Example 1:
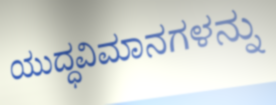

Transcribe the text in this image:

ಯುದ್ಧವಿಮಾನಗಳನ್ನು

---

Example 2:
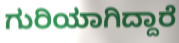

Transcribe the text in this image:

ಗುರಿಯಾಗಿದ್ದಾರೆ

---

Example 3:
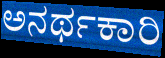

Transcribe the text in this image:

ಅನರ್ಥಕಾರಿ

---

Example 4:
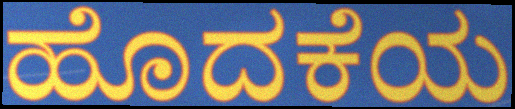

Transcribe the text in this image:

ಹೊದಕೆಯ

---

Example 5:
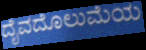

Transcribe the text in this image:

ದೈವದೊಲುಮೆಯ